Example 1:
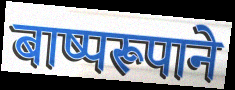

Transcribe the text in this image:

बाष्परूपाने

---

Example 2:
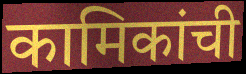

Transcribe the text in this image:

कामिकांची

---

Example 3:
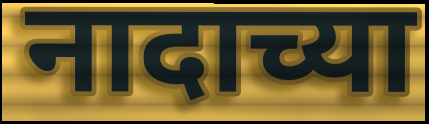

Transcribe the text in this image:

नादाच्या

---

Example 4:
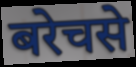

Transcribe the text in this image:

बरेचसे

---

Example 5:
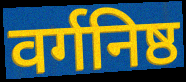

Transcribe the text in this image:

वर्गनिष्ठ